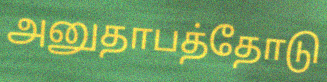
அனுதாபத்தோடு